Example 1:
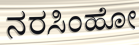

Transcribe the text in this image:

ನರಸಿಂಹೋ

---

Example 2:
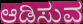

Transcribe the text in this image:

ಆಡಿಸುವ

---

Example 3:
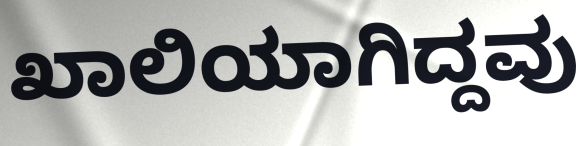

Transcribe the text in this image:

ಖಾಲಿಯಾಗಿದ್ದವು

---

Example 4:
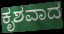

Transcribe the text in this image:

ಕೃಶವಾದ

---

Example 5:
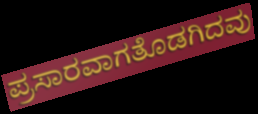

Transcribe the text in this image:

ಪ್ರಸಾರವಾಗತೊಡಗಿದವು